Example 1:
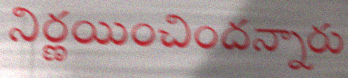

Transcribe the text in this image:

నిర్ణయించిందన్నారు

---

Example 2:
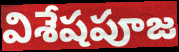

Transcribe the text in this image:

విశేషపూజ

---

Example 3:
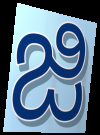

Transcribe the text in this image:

జి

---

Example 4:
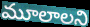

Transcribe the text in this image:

మూలాలని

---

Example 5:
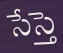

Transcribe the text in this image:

సేస్తె